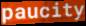
paucity